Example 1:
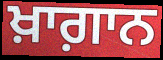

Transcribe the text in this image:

ਖ਼ਾਗ਼ਾਨ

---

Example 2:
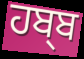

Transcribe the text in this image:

ਹਬ੍ਬ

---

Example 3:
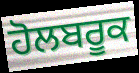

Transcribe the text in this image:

ਹੋਲਬਰੂਕ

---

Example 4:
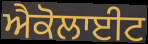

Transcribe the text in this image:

ਐਕੋਲਾਈਟ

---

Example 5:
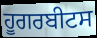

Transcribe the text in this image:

ਹੂਗਰਬੀਟਸ